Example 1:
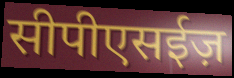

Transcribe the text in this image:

सीपीएसईज़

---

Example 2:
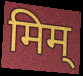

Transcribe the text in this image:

मिम्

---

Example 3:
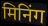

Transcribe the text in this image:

मिनिंग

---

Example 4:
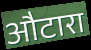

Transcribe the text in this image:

औटारा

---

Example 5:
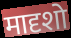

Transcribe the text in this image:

मादृशो